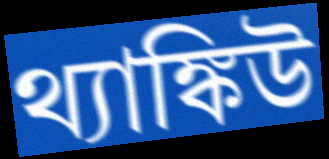
থ্যাঙ্কিউ